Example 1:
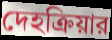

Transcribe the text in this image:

দেহক্রিয়ার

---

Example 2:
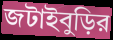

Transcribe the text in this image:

জটাইবুড়ির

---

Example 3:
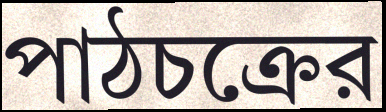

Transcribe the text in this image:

পাঠচক্রের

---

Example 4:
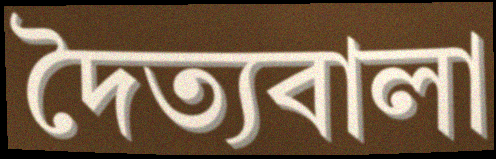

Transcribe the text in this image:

দৈত্যবালা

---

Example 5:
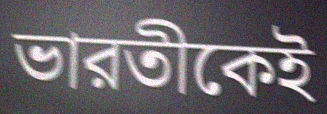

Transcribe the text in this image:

ভারতীকেই